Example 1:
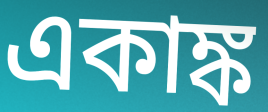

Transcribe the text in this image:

একাঙ্ক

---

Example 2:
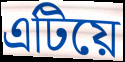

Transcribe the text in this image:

এটিয়ে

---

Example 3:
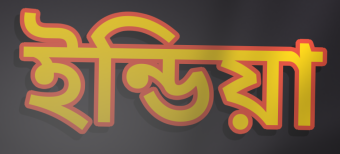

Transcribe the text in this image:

ইন্ডিয়া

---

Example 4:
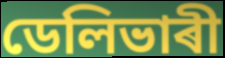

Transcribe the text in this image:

ডেলিভাৰী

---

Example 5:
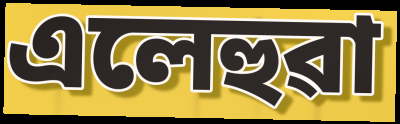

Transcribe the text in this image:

এলেহুৱা